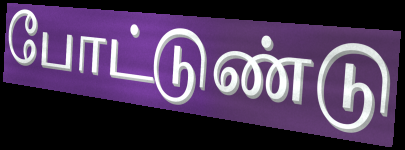
போட்டுண்டு